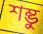
শম্ভু